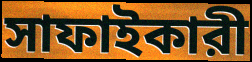
সাফাইকারী